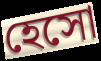
হেসো